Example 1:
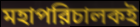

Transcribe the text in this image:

মহাপরিচালকই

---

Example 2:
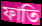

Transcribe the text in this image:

ফাতি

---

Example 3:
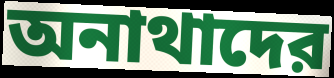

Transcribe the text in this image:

অনাথাদের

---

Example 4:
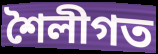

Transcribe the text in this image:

শৈলীগত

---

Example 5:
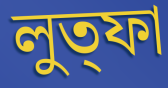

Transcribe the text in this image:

লুত্ফা